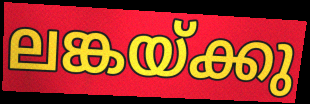
ലങ്കയ്ക്കു